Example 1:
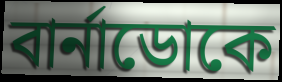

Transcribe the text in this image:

বার্নাডোকে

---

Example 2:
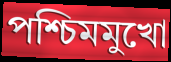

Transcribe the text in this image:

পশ্চিমমুখো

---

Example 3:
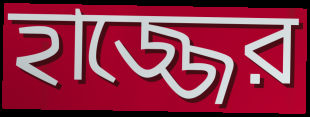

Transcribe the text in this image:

হাজ্জের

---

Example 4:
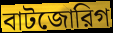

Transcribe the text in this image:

বাটজোরিগ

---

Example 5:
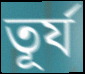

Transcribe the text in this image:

তূর্য